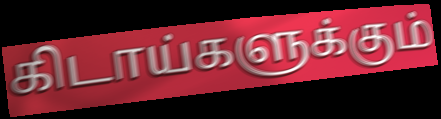
கிடாய்களுக்கும்